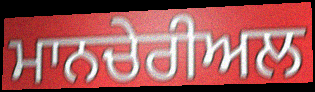
ਮਾਨਚੇਰੀਅਲ